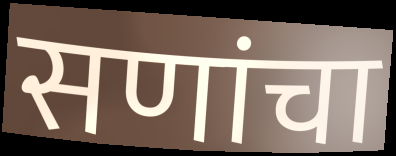
सणांचा